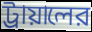
ট্রায়ালের